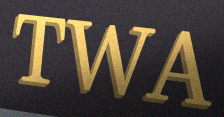
TWA